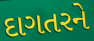
દાગતરને